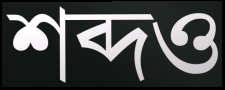
শব্দও